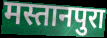
मस्तानपुरा